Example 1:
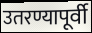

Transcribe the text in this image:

उतरण्यापूर्वी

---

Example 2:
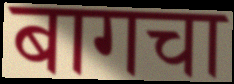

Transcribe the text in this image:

बागचा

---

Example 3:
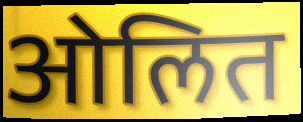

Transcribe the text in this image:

ओलित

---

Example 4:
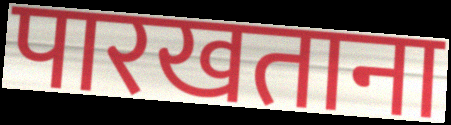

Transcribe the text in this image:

पारखताना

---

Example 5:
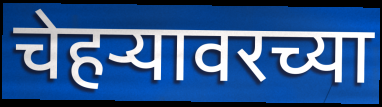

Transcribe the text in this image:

चेहर्‍यावरच्या